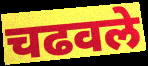
चढवले